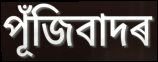
পূঁজিবাদৰ